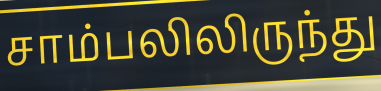
சாம்பலிலிருந்து